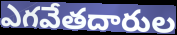
ఎగవేతదారుల